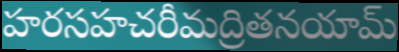
హరసహచరీమద్రితనయామ్